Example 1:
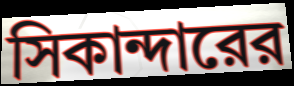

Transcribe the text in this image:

সিকান্দারের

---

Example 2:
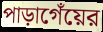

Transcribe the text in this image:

পাড়াগেঁয়ের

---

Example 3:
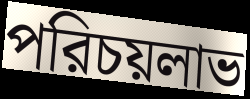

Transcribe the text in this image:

পরিচয়লাভ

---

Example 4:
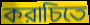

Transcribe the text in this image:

করাচিতে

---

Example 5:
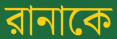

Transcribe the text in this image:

রানাকে